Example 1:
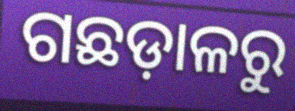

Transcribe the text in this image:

ଗଛଡ଼ାଳରୁ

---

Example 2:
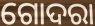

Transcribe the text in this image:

ଗୋଦରା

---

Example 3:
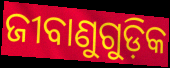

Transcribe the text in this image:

ଜୀବାଣୁଗୁଡ଼ିକ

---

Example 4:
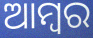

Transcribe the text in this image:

ଆମ୍ବର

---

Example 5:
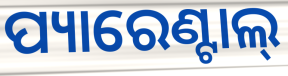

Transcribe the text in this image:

ପ୍ୟାରେଣ୍ଟାଲ୍